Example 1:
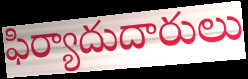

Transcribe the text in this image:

ఫిర్యాదుదారులు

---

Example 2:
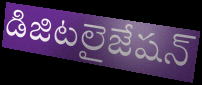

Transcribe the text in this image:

డిజిటలైజేషన్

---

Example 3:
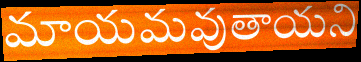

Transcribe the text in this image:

మాయమవుతాయని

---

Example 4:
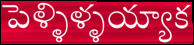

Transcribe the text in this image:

పెళ్ళిళ్ళయ్యాక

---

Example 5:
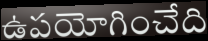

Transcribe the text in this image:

ఉపయోగించేది